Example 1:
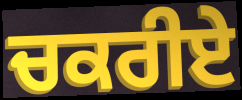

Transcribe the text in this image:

ਚਕਰੀਏ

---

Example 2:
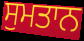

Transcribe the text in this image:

ਸੁਮਤਾਨ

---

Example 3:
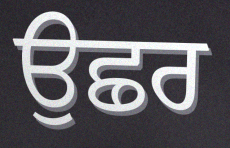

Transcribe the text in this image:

ਉਛਰ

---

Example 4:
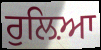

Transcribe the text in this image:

ਰੁਲ਼ਿਆ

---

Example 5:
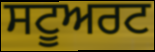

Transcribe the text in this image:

ਸਟੂਅਰਟ